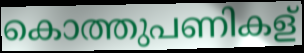
കൊത്തുപണികള്